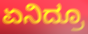
ಏನಿದ್ರೂ